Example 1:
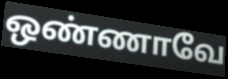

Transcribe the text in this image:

ஒண்ணாவே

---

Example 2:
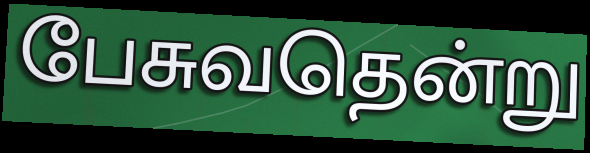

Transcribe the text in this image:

பேசுவதென்று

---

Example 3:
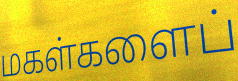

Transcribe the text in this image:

மகள்களைப்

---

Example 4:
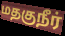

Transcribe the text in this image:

மதகுநீர்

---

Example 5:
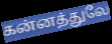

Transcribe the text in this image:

கன்னத்துலே